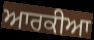
ਆਰਕੀਆ